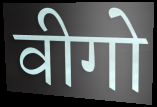
वीगो